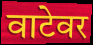
वाटेवर